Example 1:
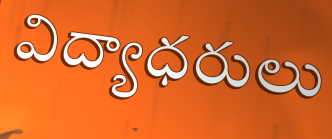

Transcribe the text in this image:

విద్యాధరులు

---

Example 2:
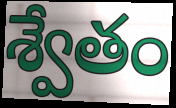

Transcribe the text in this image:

శ్వేతం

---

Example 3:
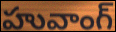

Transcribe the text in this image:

హువాంగ్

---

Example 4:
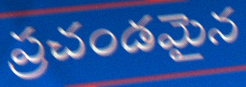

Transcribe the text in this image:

ప్రచండమైన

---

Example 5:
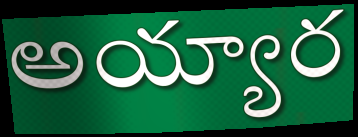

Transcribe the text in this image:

అయ్యార